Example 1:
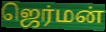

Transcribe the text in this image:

ஜெர்மன்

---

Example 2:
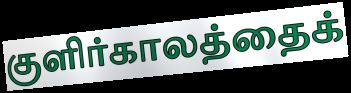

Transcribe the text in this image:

குளிர்காலத்தைக்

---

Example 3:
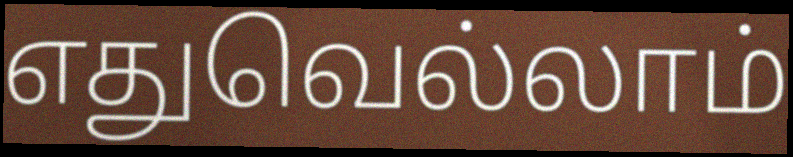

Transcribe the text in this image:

எதுவெல்லாம்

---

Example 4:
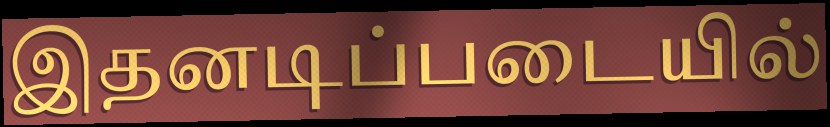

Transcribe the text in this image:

இதனடிப்படையில்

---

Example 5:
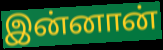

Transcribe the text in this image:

இன்னான்